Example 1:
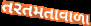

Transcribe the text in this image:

તરતમતાવાળા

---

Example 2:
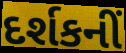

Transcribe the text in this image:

દર્શકનીં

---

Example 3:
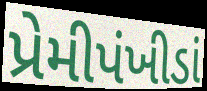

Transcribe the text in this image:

પ્રેમીપંખીડાં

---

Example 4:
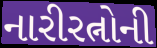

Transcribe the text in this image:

નારીરત્નોની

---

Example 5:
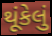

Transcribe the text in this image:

થૂંકેલું